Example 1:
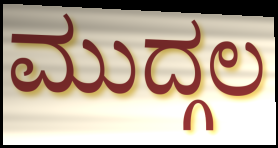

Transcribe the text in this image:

ಮುದ್ಗಲ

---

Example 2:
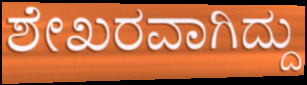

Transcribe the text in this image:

ಶೇಖರವಾಗಿದ್ದು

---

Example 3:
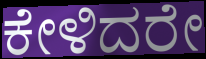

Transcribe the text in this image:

ಕೇಳಿದರೇ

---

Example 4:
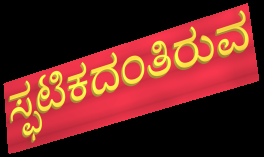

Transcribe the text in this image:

ಸ್ಫಟಿಕದಂತಿರುವ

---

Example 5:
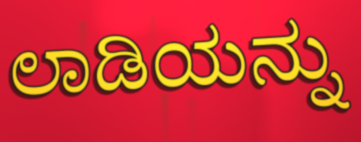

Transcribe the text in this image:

ಲಾಡಿಯನ್ನು